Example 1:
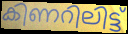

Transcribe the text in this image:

കിണറിലിട്ട്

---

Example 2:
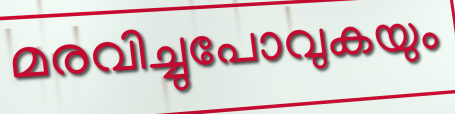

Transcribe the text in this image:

മരവിച്ചുപോവുകയും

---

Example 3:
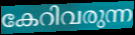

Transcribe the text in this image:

കേറിവരുന്ന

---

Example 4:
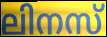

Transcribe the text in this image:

ലിനസ്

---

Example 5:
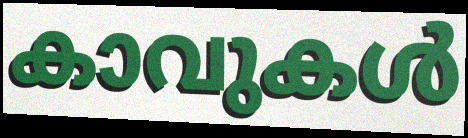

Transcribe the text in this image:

കാവുകൾ